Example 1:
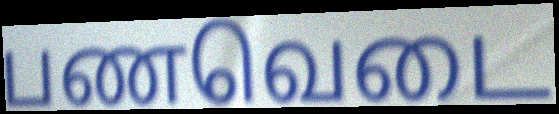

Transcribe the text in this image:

பணவெடை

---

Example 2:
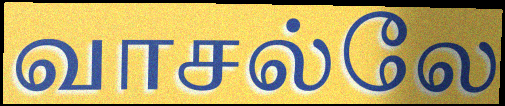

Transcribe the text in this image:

வாசல்லே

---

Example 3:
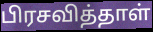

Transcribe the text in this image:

பிரசவித்தாள்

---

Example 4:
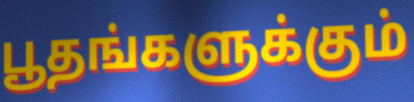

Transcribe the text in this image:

பூதங்களுக்கும்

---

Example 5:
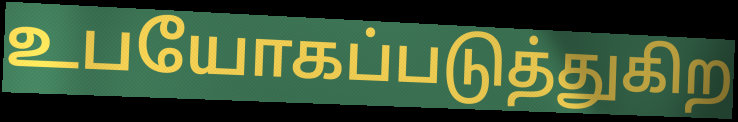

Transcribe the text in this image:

உபயோகப்படுத்துகிற